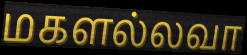
மகளல்லவா